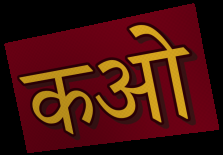
कओ